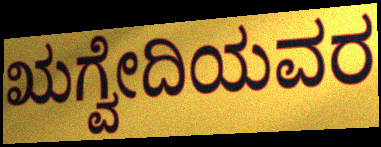
ಋಗ್ವೇದಿಯವರ